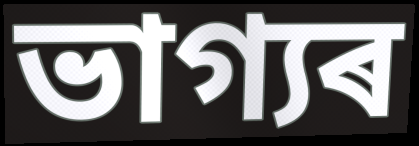
ভাগ্যৰ